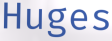
Huges